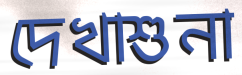
দেখাশুনা